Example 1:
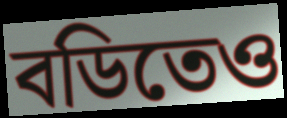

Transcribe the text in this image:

বডিতেও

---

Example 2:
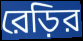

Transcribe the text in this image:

রেড়ির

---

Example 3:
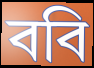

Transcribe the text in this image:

ববি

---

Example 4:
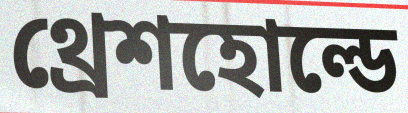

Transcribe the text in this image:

থ্রেশহোল্ডে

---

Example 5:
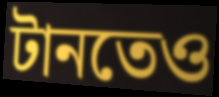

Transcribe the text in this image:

টানতেও